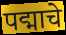
पद्माचे